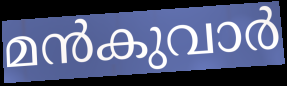
മൻകുവാർ